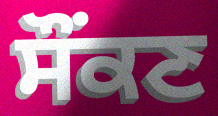
ਸੌਂਕਣ